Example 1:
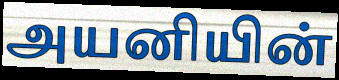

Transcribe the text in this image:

அயனியின்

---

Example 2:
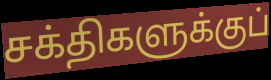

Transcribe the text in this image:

சக்திகளுக்குப்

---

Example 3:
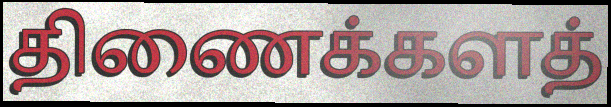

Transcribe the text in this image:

திணைக்களத்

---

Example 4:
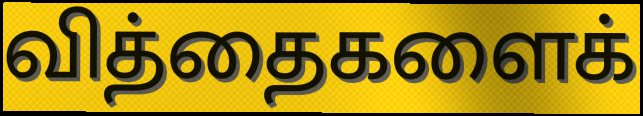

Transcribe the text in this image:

வித்தைகளைக்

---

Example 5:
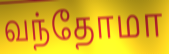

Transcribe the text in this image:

வந்தோமா